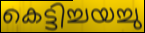
കെട്ടിച്ചയച്ചു